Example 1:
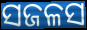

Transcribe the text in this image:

ସଜଳସ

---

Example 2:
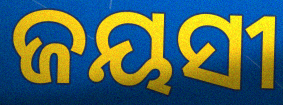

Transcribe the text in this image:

ଜୟସୀ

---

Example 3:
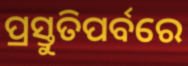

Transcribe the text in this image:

ପ୍ରସ୍ତୁତିପର୍ବରେ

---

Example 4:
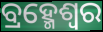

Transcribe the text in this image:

ବ୍ରହ୍ମେଶ୍ଵର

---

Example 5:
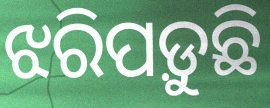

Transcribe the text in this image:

ଝରିପଡ଼ୁଛି